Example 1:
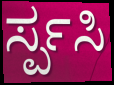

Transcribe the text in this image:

ರ್ಸ್ಪಸಿ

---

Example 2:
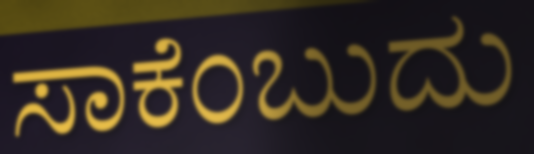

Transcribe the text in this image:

ಸಾಕೆಂಬುದು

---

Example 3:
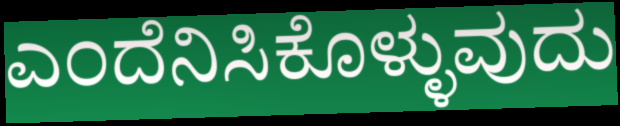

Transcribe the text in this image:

ಎಂದೆನಿಸಿಕೊಳ್ಳುವುದು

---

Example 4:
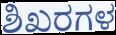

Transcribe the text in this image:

ಶಿಖರಗಳ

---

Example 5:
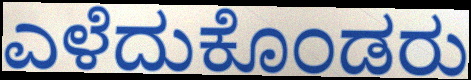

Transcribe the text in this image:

ಎಳೆದುಕೊಂಡರು